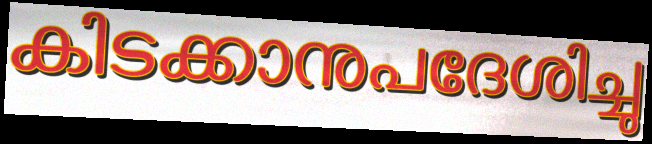
കിടക്കാനുപദേശിച്ചു